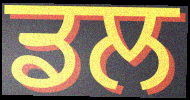
ਡਲ